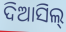
ଦିଆସିଲ୍